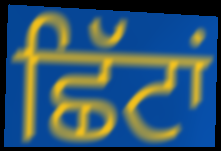
ਛਿੱਟਾਂ